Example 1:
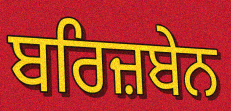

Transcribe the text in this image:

ਬਰਿਜ਼ਬੇਨ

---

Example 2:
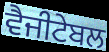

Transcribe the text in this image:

ਵੈਜੀਟੇਬਲ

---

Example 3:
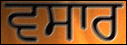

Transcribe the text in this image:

ਵਸਾਰ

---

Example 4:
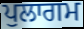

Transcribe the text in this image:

ਪੁਲਾਗਮ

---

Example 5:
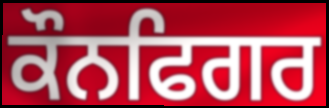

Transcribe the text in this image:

ਕੌਨਫਿਗਰ